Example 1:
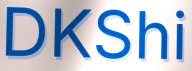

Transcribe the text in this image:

DKShi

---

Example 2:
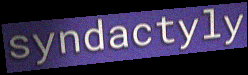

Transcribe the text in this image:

syndactyly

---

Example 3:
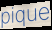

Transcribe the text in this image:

pique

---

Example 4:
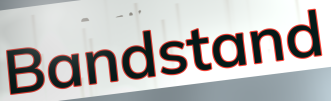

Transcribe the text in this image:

Bandstand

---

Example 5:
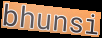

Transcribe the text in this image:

bhunsi